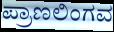
ಪ್ರಾಣಲಿಂಗವ